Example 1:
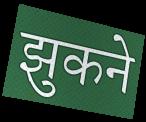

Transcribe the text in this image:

झुकने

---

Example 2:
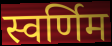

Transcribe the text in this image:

स्वर्णिम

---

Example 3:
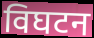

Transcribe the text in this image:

विघटन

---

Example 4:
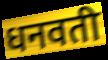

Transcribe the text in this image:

धनवती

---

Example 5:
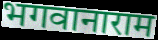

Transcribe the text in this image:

भगवानाराम